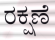
ರಕ್ಷಣೆ